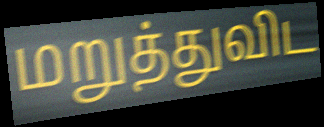
மறுத்துவிட